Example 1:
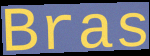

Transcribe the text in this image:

Bras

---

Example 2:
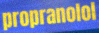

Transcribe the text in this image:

propranolol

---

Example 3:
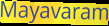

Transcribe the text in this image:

Mayavaram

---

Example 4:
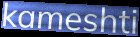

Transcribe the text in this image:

kameshti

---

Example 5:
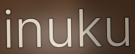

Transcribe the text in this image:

inuku